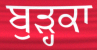
ਬੁੜ੍ਹਕਾ